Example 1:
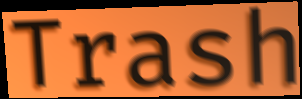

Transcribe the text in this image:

Trash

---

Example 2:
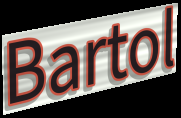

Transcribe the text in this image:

Bartol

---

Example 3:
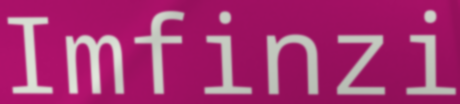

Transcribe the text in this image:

Imfinzi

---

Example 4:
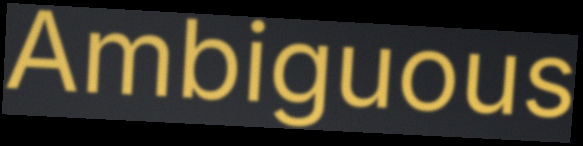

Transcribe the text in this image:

Ambiguous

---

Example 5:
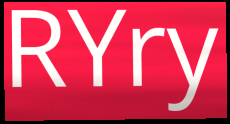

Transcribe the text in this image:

RYry